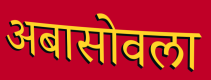
अबासोवला